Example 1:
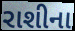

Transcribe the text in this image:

રાશીના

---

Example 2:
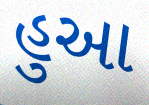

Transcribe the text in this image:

હુઆ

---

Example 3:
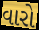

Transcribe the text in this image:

વારો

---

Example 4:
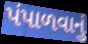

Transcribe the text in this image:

પંપાળવાનું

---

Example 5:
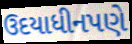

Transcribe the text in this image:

ઉદયાધીનપણે